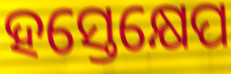
ହସ୍ତେକ୍ଷେପ